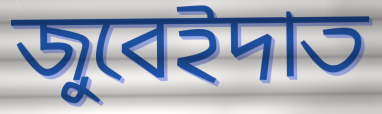
জুবেইদাত